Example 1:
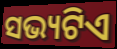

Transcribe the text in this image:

ସଭ୍ୟଟିଏ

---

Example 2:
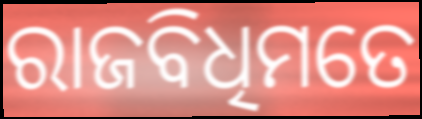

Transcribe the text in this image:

ରାଜବିଧିମତେ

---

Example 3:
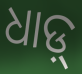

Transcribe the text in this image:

ଧାଡ଼୍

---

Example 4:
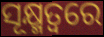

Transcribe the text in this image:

ସୂକ୍ଷ୍ମତ୍ୱରେ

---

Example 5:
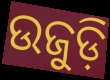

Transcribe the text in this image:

ଉଜୁଡ଼ି